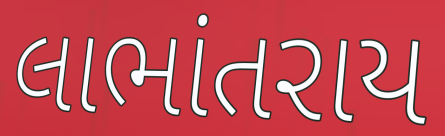
લાભાંતરાય